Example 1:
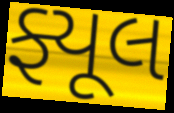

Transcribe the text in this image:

ફ્યૂલ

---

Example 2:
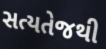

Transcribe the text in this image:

સત્યતેજથી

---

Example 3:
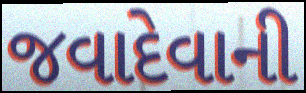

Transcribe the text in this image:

જવાદેવાની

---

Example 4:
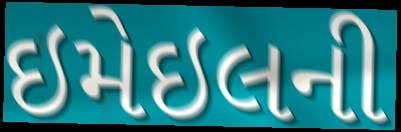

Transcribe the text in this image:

ઇમેઇલની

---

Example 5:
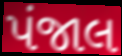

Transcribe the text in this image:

પંજાલ